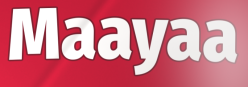
Maayaa